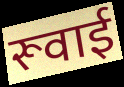
रूवाई